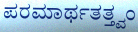
ಪರಮಾರ್ಥತತ್ತ್ವಂ